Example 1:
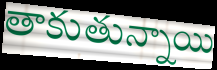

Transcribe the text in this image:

తాకుతున్నాయి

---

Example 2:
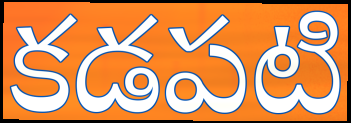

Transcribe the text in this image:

కడపటి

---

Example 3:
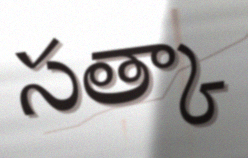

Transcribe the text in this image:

సత్కా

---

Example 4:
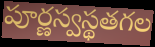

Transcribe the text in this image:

పూర్ణస్వస్థతగల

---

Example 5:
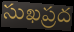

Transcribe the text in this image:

సుఖప్రద